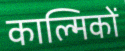
काल्मिकों